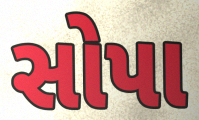
સોપા